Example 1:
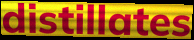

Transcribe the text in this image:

distillates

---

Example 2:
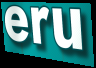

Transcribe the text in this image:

eru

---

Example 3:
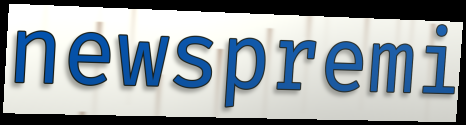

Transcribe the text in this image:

newspremi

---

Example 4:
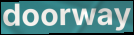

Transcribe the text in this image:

doorway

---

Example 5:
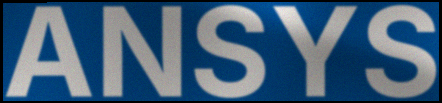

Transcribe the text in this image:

ANSYS